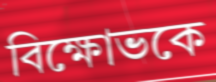
বিক্ষোভকে